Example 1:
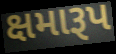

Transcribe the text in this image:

ક્ષમારૂપ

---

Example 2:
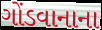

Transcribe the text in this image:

ગોંડવાનાના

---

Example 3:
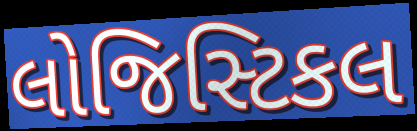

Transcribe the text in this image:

લોજિસ્ટિકલ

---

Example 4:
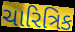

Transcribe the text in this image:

ચારિત્રિક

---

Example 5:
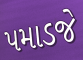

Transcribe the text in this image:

પમાડજે